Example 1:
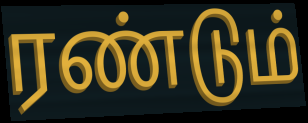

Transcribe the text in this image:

ரண்டும்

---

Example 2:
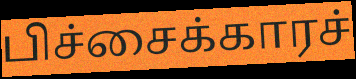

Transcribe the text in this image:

பிச்சைக்காரச்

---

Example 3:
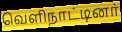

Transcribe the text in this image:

வெளிநாட்டினர்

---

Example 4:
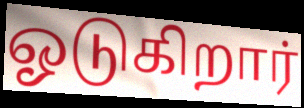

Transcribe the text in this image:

ஓடுகிறார்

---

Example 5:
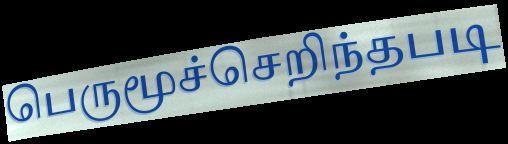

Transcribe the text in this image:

பெருமூச்செறிந்தபடி